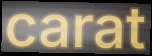
carat